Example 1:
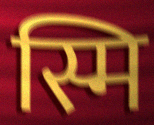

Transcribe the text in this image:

स्मि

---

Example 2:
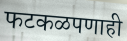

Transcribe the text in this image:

फटकळपणाही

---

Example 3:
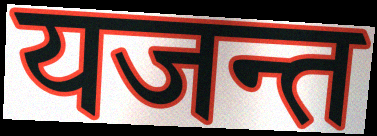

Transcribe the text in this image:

यजन्त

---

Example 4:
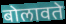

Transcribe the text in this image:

बोलावते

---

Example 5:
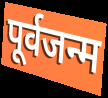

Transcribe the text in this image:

पूर्वजन्म